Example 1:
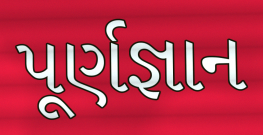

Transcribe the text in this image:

પૂર્ણજ્ઞાન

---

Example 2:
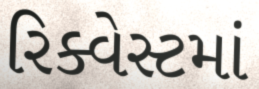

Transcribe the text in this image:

રિક્વેસ્ટમાં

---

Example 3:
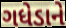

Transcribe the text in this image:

ગધેડાને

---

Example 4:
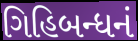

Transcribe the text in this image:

ગિહિબન્ધનં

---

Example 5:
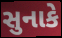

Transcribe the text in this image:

સુનાકે